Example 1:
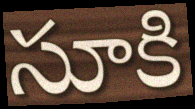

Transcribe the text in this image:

సూకి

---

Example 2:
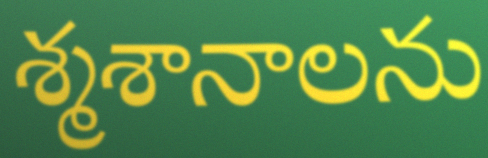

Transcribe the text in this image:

శ్మశానాలను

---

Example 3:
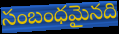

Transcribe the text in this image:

సంబంధమైనది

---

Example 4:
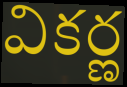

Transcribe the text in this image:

వికర్ణ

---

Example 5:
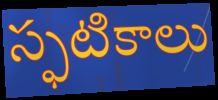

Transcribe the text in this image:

స్ఫటికాలు